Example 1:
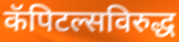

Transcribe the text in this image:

कॅपिटल्सविरुद्ध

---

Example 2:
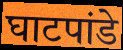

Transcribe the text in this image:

घाटपांडे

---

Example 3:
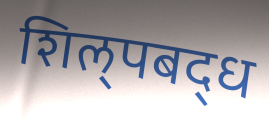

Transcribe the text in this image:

शिल्पबद्ध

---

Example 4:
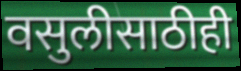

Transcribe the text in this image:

वसुलीसाठीही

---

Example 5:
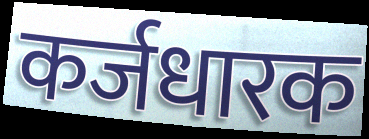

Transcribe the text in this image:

कर्जधारक